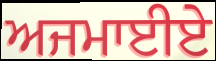
ਅਜਮਾਈਏ